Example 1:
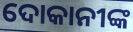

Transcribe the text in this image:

ଦୋକାନୀଙ୍କ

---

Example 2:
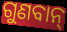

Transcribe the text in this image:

ଗୁଣବାନ୍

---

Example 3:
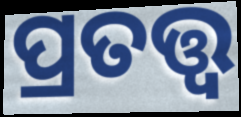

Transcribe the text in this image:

ପ୍ରତତ୍ତ୍ୱ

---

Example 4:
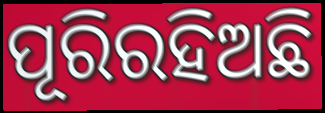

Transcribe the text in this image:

ପୂରିରହିଅଛି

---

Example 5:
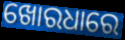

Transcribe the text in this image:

ଖୋରଧାରେ